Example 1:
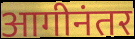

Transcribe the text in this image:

आगीनंतर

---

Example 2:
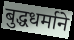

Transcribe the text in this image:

बुद्धधर्माने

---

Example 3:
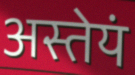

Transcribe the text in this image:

अस्तेयं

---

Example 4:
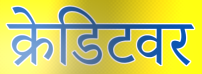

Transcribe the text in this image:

क्रेडिटवर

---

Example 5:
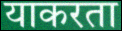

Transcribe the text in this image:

याकरता